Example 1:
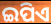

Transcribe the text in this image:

ଇପିଏ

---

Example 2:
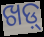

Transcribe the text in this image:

ଖଡ଼୍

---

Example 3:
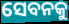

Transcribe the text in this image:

ସେବନକୁ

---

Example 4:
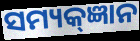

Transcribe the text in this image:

ସମ୍ୟକ୍ଜ୍ଞାନ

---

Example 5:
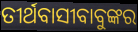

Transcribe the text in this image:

ତୀର୍ଥବାସୀବାବୁଙ୍କର